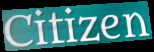
Citizen